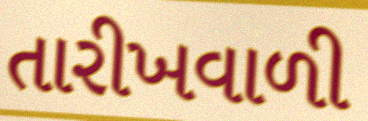
તારીખવાળી